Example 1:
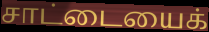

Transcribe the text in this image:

சாட்டையைக்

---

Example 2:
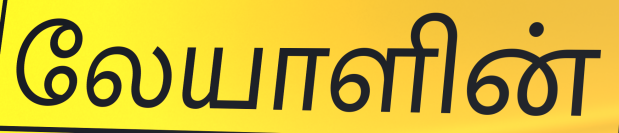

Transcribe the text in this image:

லேயாளின்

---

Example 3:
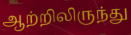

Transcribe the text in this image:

ஆற்றிலிருந்து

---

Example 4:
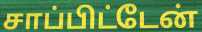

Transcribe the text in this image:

சாப்பிட்டேன்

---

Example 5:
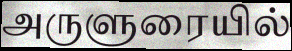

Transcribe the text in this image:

அருளுரையில்